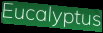
Eucalyptus